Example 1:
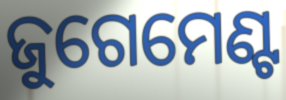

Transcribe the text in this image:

ଜୁଗେମେଣ୍ଟ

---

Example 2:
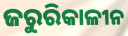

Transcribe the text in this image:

ଜରୁରିକାଳୀନ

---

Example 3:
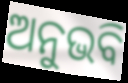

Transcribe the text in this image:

ଅନୁଭବି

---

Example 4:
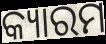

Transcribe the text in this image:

କ୍ୟାରମ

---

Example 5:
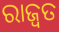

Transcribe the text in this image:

ରାଜ୍ୱତ